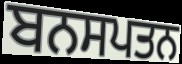
ਬਨਸਪਤਨ